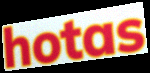
hotas